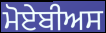
ਮੋਏਬੀਅਸ